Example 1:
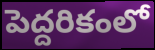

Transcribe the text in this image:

పెద్దరికంలో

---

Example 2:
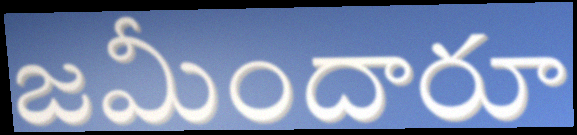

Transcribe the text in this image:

జమీందారూ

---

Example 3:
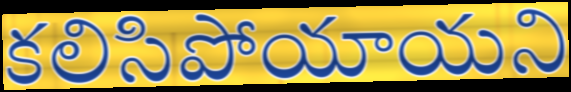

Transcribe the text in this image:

కలిసిపోయాయని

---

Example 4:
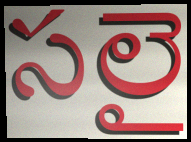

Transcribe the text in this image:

సలై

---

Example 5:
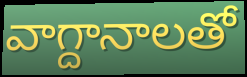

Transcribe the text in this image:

వాగ్దానాలతో